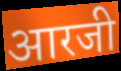
आरजी